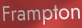
Frampton